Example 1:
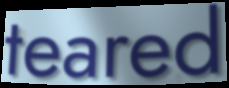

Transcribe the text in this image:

teared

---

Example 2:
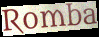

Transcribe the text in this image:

Romba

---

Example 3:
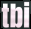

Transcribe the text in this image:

tbi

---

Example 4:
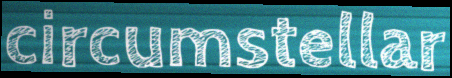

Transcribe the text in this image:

circumstellar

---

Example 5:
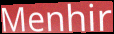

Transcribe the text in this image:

Menhir